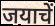
जयाचें